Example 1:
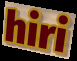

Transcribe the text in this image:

hiri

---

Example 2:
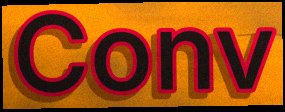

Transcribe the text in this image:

Conv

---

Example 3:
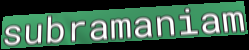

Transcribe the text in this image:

subramaniam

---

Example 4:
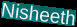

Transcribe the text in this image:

Nisheeth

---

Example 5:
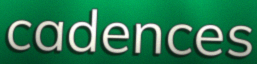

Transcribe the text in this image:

cadences